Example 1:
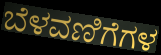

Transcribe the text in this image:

ಬೆಳವಣಿಗೆಗಳ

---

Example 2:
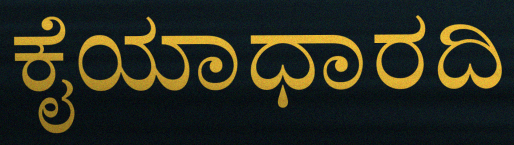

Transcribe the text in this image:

ಕೈಯಾಧಾರದಿ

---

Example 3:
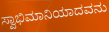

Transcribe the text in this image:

ಸ್ವಾಭಿಮಾನಿಯಾದವನು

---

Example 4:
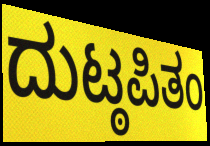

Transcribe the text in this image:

ದುಟ್ಠಪಿತಂ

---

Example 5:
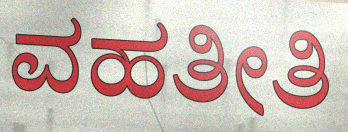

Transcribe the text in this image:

ವಹತೀತಿ